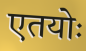
एतयोः